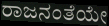
ರಾಜನಂತೆಯೇ